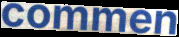
commen